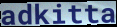
adkitta